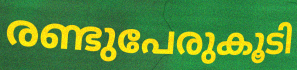
രണ്ടുപേരുകൂടി